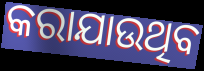
କରାଯାଉଥିବ